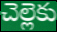
చెల్లెకు